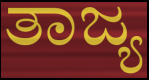
ತಾಜ್ಯ